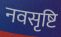
नवसृष्टि